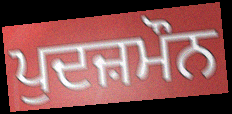
ਪੁਦਜ਼ਮੌਨ